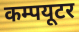
कम्पयूटर